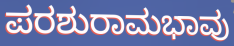
ಪರಶುರಾಮಭಾವು